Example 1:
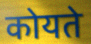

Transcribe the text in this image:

कोयते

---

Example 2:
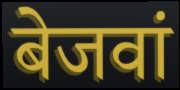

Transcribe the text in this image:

बेजवां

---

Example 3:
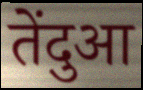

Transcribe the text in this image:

तेंदुआ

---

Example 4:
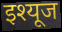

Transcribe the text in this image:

इश्यूज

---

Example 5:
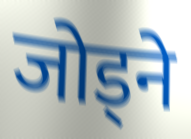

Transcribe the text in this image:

जोड्ने